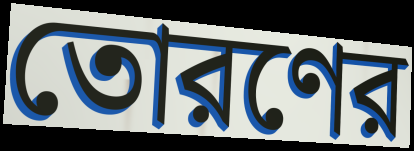
তোরণের